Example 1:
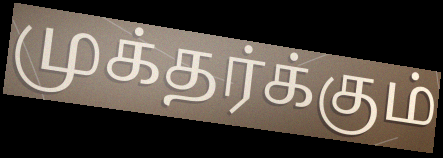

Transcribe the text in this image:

முக்தர்க்கும்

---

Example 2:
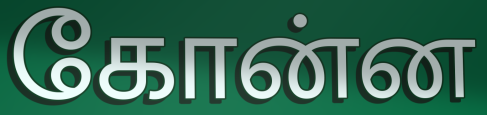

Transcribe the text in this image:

கோன்ன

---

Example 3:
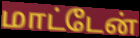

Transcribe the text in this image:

மாட்டேன்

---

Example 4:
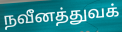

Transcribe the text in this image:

நவீனத்துவக்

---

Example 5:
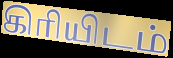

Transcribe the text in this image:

கிரியிடம்